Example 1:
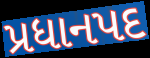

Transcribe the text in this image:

પ્રધાનપદ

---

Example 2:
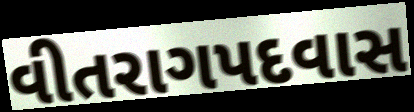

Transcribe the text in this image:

વીતરાગપદવાસ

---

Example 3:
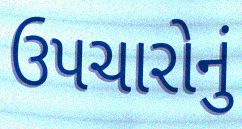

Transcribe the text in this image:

ઉપચારોનું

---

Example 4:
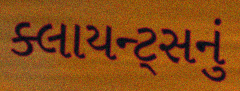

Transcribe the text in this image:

ક્લાયન્ટ્સનું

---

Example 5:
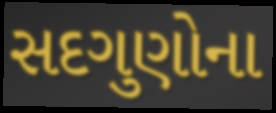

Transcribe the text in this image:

સદગુણોના